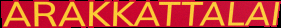
ARAKKATTALAI